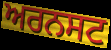
ਅਰਨਸਟ